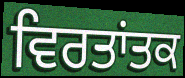
ਵਿਰਤਾਂਤਕ